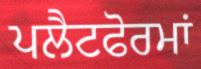
ਪਲੈਟਫੋਰਮਾਂ